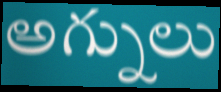
అగ్నులు